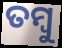
ତମ୍ବୁ